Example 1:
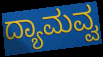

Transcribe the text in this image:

ದ್ಯಾಮವ್ವ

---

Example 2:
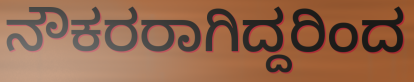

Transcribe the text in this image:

ನೌಕರರಾಗಿದ್ದರಿಂದ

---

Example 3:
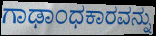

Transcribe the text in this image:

ಗಾಢಾಂಧಕಾರವನ್ನು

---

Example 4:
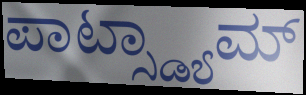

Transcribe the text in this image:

ಪಾಟ್ಸ್ಡ್ಯಾಮ್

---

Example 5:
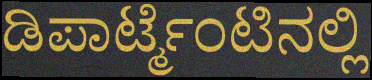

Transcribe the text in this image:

ಡಿಪಾರ್ಟ್ಮೆಂಟಿನಲ್ಲಿ